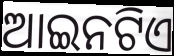
ଆଇନଟିଏ